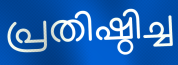
പ്രതിഷ്ഠിച്ച